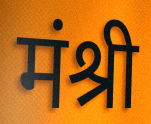
मंश्री